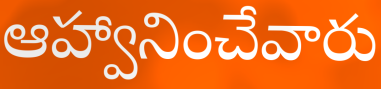
ఆహ్వానించేవారు